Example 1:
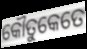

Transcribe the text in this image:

କୌତୁକେତେ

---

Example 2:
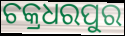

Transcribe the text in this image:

ଚକ୍ରଧରପୁର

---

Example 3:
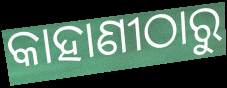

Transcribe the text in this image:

କାହାଣୀଠାରୁ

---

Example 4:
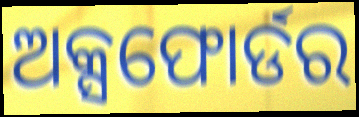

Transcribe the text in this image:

ଅକ୍ସଫୋର୍ଡର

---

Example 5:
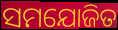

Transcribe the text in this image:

ସମଯୋଜିତ